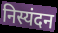
निस्यंदन